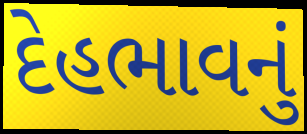
દેહભાવનું